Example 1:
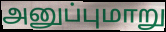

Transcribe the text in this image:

அனுப்புமாறு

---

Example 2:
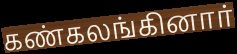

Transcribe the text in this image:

கண்கலங்கினார்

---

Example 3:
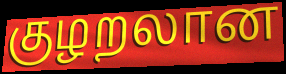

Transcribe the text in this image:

குழறலான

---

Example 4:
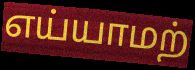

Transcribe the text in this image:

எய்யாமற்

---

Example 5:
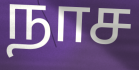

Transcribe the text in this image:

நாச